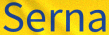
Serna